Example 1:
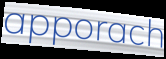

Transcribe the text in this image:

apporach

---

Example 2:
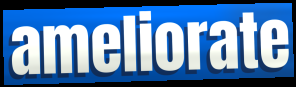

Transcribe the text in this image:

ameliorate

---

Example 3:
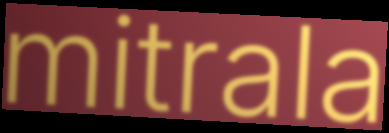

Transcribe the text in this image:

mitrala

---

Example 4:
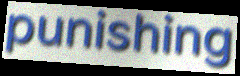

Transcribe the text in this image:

punishing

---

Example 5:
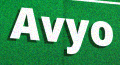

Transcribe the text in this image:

Avyo